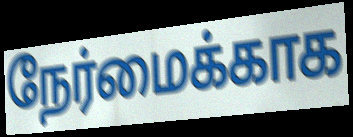
நேர்மைக்காக